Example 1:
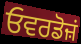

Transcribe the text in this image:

ਓਵਰਡੋਜ਼ਂ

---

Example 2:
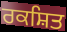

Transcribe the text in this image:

ਰਕਸ਼ਿਤ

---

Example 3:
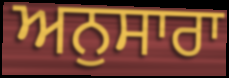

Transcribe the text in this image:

ਅਨੁਸਾਰਾ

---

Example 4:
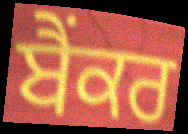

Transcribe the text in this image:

ਬੈਂਕਰ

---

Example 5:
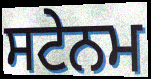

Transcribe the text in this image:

ਸਟੇਨਮ